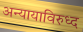
अन्यायाविरुध्द